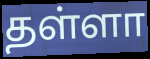
தள்ளா